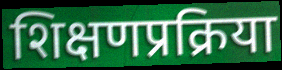
शिक्षणप्रक्रिया